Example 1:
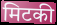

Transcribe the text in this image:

मिटकी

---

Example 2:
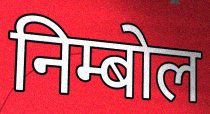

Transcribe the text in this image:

निम्बोल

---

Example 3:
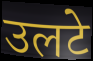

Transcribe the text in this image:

उलटे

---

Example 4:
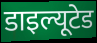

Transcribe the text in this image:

डाइल्यूटेड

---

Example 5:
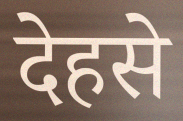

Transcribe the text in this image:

देहसे